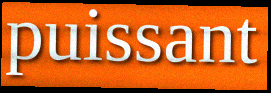
puissant